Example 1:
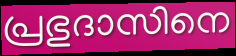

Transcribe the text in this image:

പ്രഭുദാസിനെ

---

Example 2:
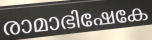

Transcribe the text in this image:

രാമാഭിഷേകേ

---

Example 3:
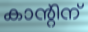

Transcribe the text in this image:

കാന്റിന്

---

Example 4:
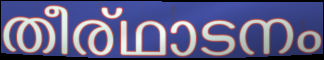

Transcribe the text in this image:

തീര്ഥാടനം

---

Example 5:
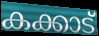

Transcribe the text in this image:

കക്കാട്